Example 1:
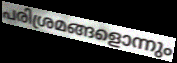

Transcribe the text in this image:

പരിശ്രമങ്ങളൊന്നും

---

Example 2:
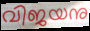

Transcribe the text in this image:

വിജയനു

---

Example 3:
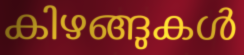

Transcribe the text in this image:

കിഴങ്ങുകൾ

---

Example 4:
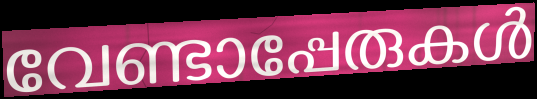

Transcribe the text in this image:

വേണ്ടാപ്പേരുകൾ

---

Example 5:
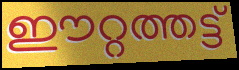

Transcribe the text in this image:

ഈറ്റത്തട്ട്